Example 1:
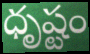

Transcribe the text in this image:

ధృష్టం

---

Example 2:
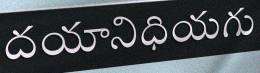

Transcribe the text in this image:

దయానిధియగు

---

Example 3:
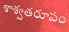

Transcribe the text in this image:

శాశ్వతరూపం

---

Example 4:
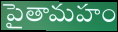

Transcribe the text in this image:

పైతామహం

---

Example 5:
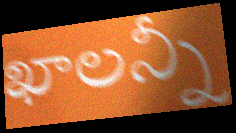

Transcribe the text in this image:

ఖాలన్నీ